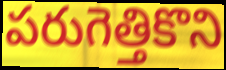
పరుగెత్తికొని